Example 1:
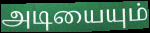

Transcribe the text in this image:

அடியையும்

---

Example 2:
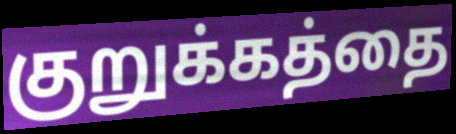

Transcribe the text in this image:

குறுக்கத்தை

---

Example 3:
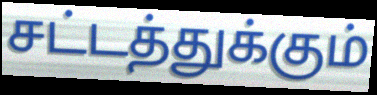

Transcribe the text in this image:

சட்டத்துக்கும்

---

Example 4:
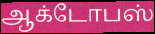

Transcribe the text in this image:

ஆக்டோபஸ்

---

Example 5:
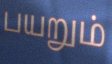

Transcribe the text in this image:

பயறும்